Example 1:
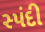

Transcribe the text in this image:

સ્પંદી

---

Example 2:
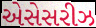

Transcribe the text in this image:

એસેસરીઝ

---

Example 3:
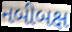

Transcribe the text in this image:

નબીબક્ષ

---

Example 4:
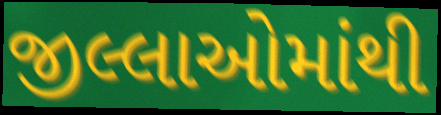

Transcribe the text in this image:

જીલ્લાઓમાંથી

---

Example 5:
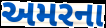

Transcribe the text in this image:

અમરના